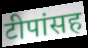
टीपांसह